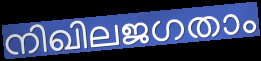
നിഖിലജഗതാം